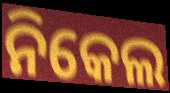
ନିକେଲ